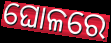
ଘୋଳରେ